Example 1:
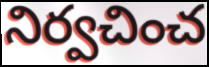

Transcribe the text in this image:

నిర్వచించ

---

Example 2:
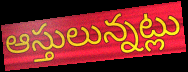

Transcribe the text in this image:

ఆస్తులున్నట్లు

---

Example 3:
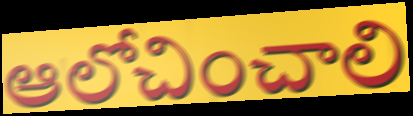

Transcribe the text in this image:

ఆలోచించాలి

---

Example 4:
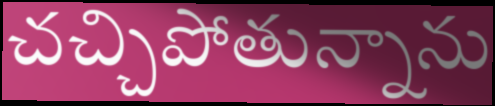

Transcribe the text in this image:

చచ్చిపోతున్నాను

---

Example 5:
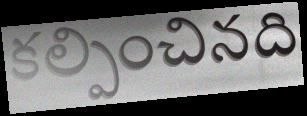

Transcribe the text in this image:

కల్పించినది